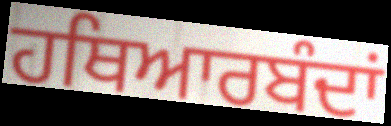
ਹਥਿਆਰਬੰਦਾਂ